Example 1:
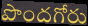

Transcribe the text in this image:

పొందగోరు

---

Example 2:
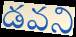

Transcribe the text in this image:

డవని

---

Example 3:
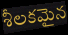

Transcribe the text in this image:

శీలకమైన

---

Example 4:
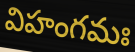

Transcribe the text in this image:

విహంగమః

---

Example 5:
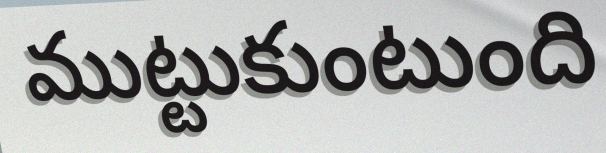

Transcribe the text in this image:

ముట్టుకుంటుంది